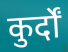
कुर्दों